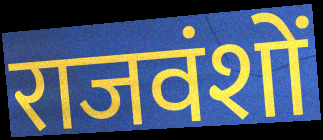
राजवंशों